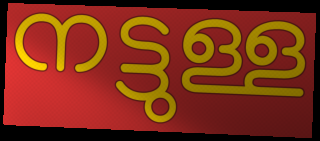
നട്ടുള്ള